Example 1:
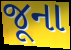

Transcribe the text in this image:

જૂના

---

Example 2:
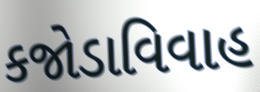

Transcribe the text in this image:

કજોડાવિવાહ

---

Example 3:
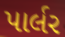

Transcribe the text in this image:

પાર્લર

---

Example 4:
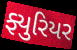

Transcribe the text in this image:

ફ્યુરિયર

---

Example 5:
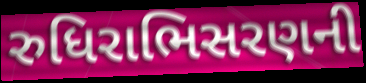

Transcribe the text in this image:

રુધિરાભિસરણની